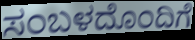
ಸಂಬಳದೊಂದಿಗೆ